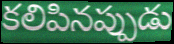
కలిపినప్పుడు